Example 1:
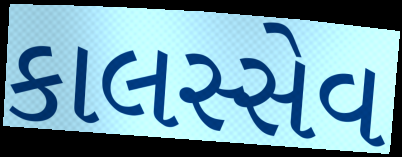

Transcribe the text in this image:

કાલસ્સેવ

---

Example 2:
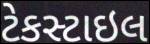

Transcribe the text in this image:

ટેકસ્ટાઇલ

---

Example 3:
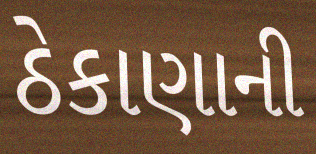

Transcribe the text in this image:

ઠેકાણાની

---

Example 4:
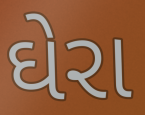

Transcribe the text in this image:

ઘેરા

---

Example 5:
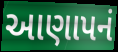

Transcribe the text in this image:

આણાપનં